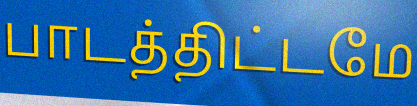
பாடத்திட்டமே